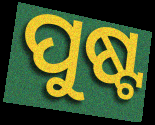
ପୁଷ୍ଟ